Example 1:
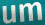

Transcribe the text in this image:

um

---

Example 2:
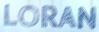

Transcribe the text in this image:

LORAN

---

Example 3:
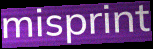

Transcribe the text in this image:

misprint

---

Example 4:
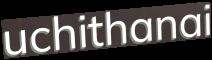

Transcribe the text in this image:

uchithanai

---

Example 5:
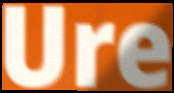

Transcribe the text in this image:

Ure